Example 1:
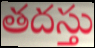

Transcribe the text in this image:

తదస్తు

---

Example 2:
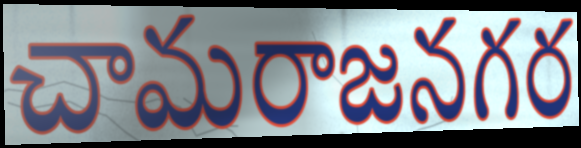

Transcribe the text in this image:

చామరాజనగర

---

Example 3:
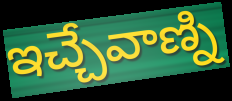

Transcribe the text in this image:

ఇచ్చేవాణ్ని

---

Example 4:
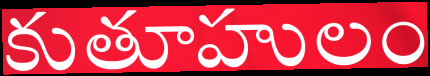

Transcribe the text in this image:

కుతూహులం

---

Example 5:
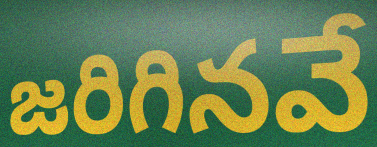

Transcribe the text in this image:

జరిగినవే